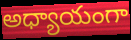
అధ్యాయంగా